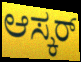
ಆಸ್ಕರ್